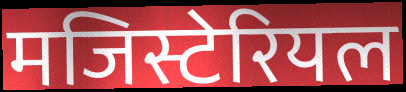
मजिस्टेरियल